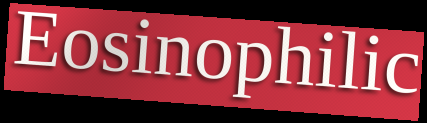
Eosinophilic